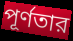
পূর্ণতার